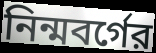
নিন্মবর্গের